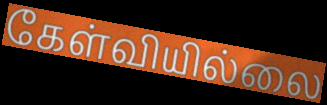
கேள்வியில்லை